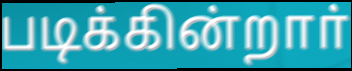
படிக்கின்றார்